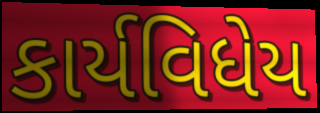
કાર્યવિધેય